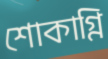
শোকাগ্নি